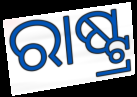
ରାଷ୍ଟ୍ର